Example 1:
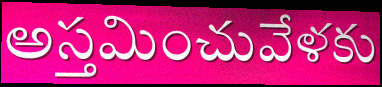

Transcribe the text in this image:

అస్తమించువేళకు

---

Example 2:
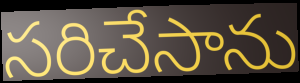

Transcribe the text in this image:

సరిచేసాను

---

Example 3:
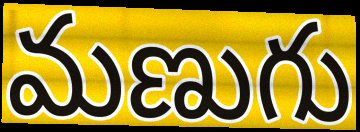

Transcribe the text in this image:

మణుగు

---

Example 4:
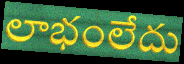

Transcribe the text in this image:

లాభంలేదు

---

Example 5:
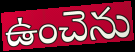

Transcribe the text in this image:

ఉంచెను